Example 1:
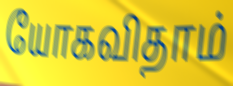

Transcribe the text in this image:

யோகவிதாம்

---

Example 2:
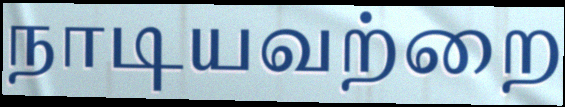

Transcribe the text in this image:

நாடியவற்றை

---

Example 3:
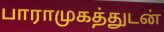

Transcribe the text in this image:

பாராமுகத்துடன்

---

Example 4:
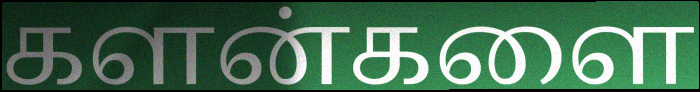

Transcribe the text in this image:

களன்களை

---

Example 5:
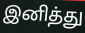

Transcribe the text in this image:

இனித்து